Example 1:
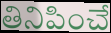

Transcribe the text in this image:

తినిపించే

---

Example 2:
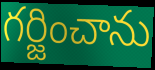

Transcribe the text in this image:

గర్జించాను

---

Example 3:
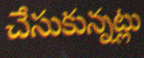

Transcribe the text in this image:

చేసుకున్నట్లు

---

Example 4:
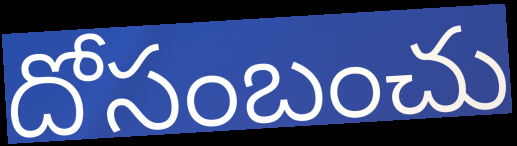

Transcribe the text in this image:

దోసంబంచు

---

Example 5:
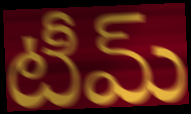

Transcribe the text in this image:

టీమ్